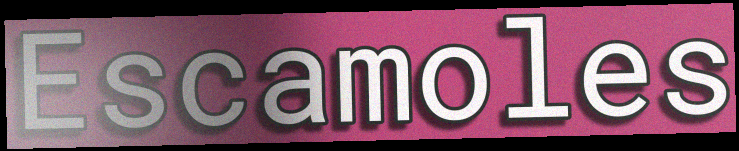
Escamoles